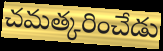
చమత్కరించేడు